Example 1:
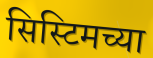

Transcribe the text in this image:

सिस्टिमच्या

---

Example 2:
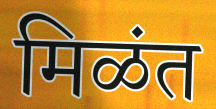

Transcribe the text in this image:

मिळंत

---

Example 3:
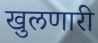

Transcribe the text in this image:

खुलणारी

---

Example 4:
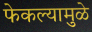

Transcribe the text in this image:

फेकल्यामुळे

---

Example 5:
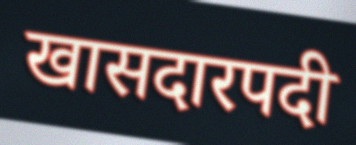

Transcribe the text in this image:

खासदारपदी